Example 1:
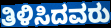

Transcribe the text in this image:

ತಿಳಿಸಿದವರು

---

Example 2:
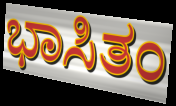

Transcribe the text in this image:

ಭಾಸಿತಂ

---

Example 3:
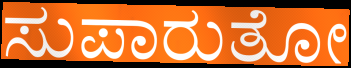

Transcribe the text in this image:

ಸುಪಾರುತೋ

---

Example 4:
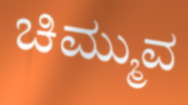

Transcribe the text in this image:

ಚಿಮ್ಮುವ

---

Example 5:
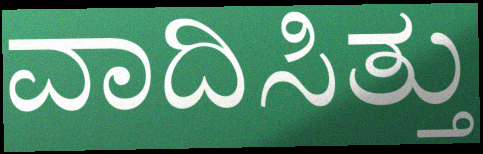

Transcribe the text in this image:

ವಾದಿಸಿತ್ತು